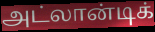
அட்லான்டிக்